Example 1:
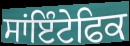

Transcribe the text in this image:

ਸਾਂਇੰਟੇਫਿਕ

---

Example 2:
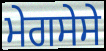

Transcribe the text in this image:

ਮੇਗਸੇਸੇ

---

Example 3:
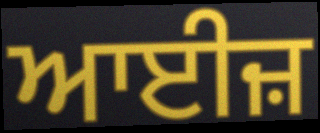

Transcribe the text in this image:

ਆਈਜ਼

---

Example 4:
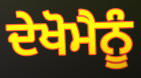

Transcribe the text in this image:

ਦੇਖੋਮੈਨੂੰ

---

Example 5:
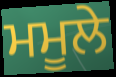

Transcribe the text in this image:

ਮਮੂਲੇ